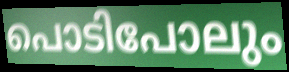
പൊടിപോലും